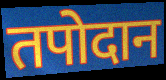
तपोदान